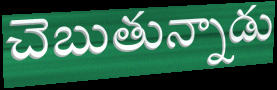
చెబుతున్నాడు